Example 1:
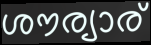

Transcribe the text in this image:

ശൗര്യാര്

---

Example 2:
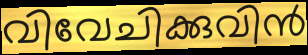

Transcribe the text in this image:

വിവേചിക്കുവിൻ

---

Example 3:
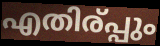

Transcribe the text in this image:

എതിര്പ്പും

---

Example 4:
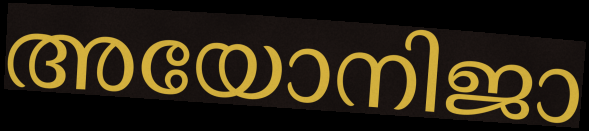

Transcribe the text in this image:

അയോനിജാ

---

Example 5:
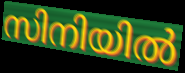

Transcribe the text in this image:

സിനിയിൽ